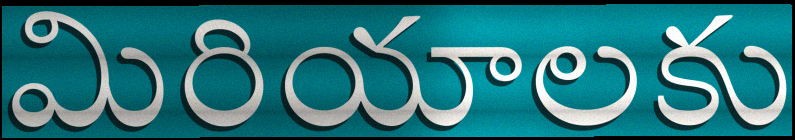
మిరియాలకు